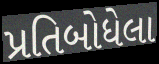
પ્રતિબોધેલા